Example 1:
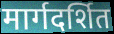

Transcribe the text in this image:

मार्गदर्शित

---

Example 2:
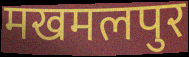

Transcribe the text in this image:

मखमलपुर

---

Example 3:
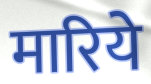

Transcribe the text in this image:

मारिये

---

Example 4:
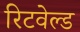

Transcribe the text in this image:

रिटवेल्ड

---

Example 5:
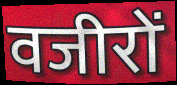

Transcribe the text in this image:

वजीरों